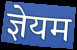
ज्ञेयम